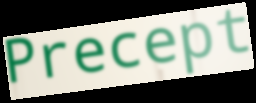
Precept